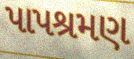
પાપશ્રમણ